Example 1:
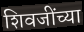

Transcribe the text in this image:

शिवजींच्या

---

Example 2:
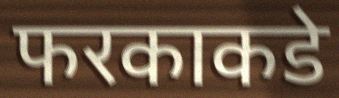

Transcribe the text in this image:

फरकाकडे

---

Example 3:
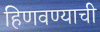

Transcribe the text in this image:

हिणवण्याची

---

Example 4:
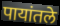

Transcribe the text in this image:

पायांतले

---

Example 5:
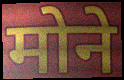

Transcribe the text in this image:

मोने